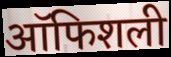
ऑफिशली